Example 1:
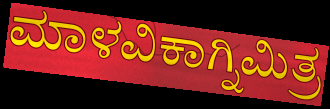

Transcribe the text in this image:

ಮಾಳವಿಕಾಗ್ನಿಮಿತ್ರ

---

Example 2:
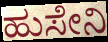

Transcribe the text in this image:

ಹುಸೇನಿ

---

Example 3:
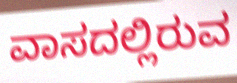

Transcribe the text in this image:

ವಾಸದಲ್ಲಿರುವ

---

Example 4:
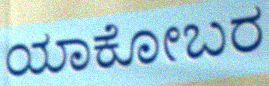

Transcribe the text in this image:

ಯಾಕೋಬರ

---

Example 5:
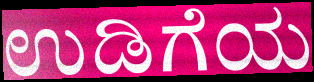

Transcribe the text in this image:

ಉಡಿಗೆಯ